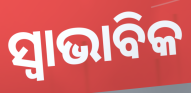
ସ୍ଵାଭାବିକ